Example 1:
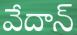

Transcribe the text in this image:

వేదాన్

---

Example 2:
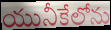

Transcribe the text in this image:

యునీకేలోను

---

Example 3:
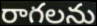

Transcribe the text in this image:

రాగలను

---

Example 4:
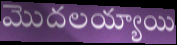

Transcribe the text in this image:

మొదలయ్యాయి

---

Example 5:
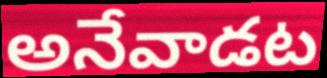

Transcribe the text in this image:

అనేవాడట